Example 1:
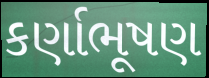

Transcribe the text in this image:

કર્ણાભૂષણ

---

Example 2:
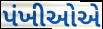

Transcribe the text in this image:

પંખીઓએ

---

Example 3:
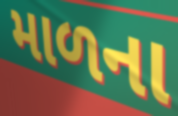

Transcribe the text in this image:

માળના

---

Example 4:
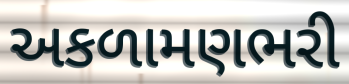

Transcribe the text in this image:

અકળામણભરી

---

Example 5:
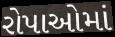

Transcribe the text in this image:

રોપાઓમાં